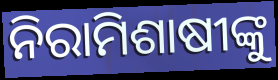
ନିରାମିଶାଷୀଙ୍କୁ